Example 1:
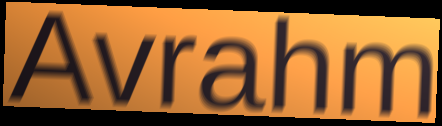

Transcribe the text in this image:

Avrahm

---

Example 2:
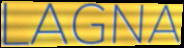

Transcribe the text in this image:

LAGNA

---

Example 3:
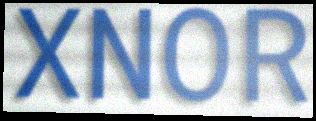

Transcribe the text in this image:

XNOR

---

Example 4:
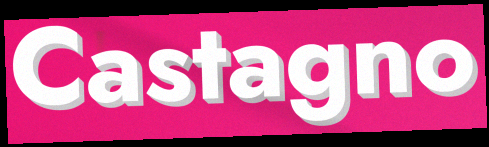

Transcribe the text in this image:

Castagno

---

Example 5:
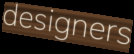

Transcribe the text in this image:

designers